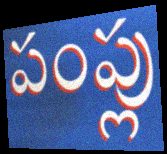
పంప్లు